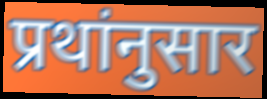
प्रथांनुसार